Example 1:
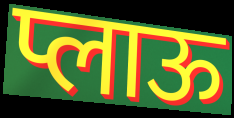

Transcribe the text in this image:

प्लाऊ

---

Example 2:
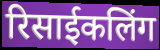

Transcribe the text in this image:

रिसाईकलिंग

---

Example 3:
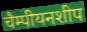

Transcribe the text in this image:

चैम्पीयनशीप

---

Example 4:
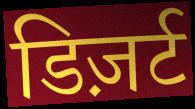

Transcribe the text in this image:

डिज़र्ट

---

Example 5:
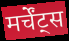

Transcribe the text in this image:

मर्चेंट्स